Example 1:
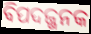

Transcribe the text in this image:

ବିପଦଜ୍ଜନକ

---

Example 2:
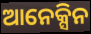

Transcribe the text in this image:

ଆନେକ୍ସିନ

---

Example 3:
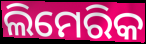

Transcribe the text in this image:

ଲିମେରିକ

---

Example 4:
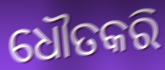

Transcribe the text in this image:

ଧୌତକରି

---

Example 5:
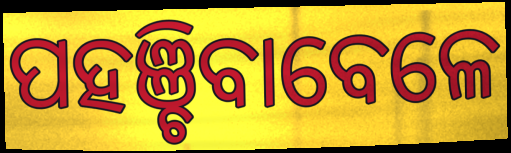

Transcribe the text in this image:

ପହଞ୍ଚିବାବେଳେ